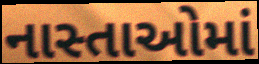
નાસ્તાઓમાં